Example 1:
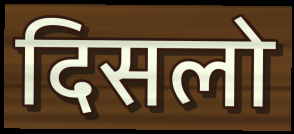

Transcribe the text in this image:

दिसलो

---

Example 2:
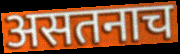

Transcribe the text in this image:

असतनाच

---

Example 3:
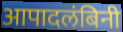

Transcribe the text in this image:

आपादलंबिनी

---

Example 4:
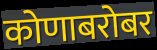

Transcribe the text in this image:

कोणाबरोबर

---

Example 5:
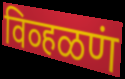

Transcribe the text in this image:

विव्हळणं